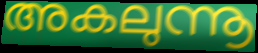
അകലുന്നൂ